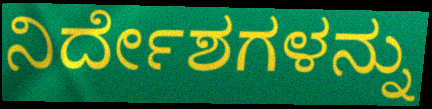
ನಿರ್ದೇಶಗಳನ್ನು